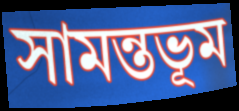
সামন্তভূম